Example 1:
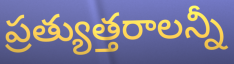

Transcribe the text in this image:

ప్రత్యుత్తరాలన్నీ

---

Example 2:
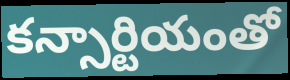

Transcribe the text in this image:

కన్సార్టియంతో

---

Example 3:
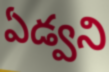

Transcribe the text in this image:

ఏడ్వని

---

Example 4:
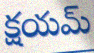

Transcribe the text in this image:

క్షయమ్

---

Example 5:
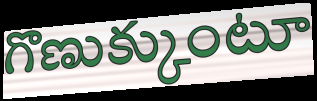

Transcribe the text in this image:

గొణుక్కుంటూ